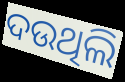
ଦଉଥିଲି